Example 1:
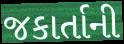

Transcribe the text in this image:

જકાર્તાની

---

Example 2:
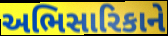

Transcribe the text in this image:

અભિસારિકાને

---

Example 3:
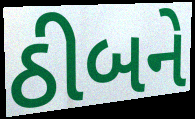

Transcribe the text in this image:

ઠીબને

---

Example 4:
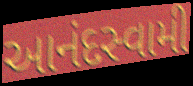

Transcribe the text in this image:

આનંદસ્વામી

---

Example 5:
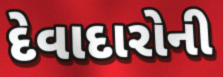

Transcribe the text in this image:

દેવાદારોની